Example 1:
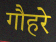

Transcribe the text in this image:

गौहरे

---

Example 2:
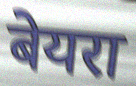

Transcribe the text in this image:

बेयरा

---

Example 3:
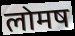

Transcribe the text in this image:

लोमष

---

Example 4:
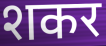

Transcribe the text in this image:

शकर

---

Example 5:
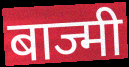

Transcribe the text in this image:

बाज्मी